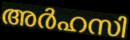
അർഹസി